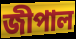
জীপাল